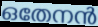
ഒതേനൻ